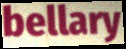
bellary